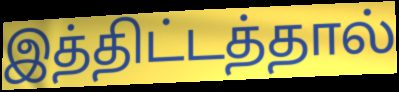
இத்திட்டத்தால்